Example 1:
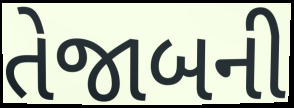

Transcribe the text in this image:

તેજાબની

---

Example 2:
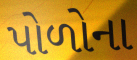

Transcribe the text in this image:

પોળોના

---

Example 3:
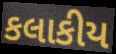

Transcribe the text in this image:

કલાકીય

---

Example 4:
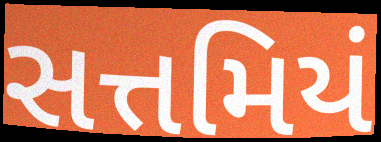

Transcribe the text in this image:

સત્તમિયં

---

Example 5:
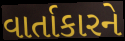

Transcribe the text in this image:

વાર્તાકારને